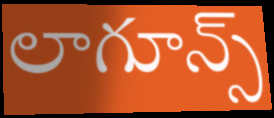
లాగూన్స్